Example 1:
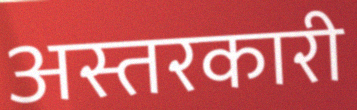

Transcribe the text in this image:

अस्तरकारी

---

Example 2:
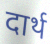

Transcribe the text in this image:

दार्थ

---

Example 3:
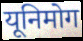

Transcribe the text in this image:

यूनिमोग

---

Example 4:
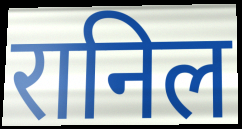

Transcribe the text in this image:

रानिल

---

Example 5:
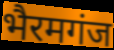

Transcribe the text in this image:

भैरमगंज